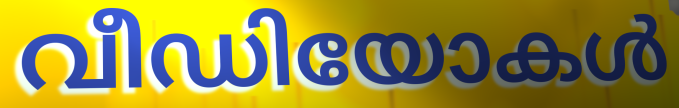
വീഡിയോകൾ